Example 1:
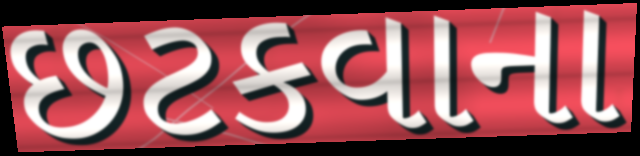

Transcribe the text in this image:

છટકવાના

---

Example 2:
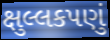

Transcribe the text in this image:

ક્ષુલ્લકપણું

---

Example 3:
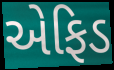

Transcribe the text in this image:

એફિડ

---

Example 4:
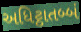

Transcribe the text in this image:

અધિટ્ઠાતબ્બં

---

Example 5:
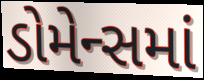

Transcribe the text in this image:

ડોમેન્સમાં